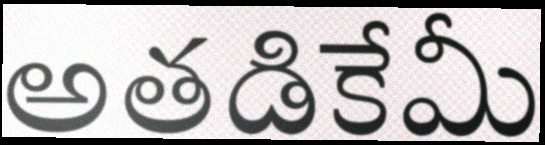
అతడికేమీ